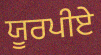
ਯੂਰਪੀਏ